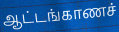
ஆட்டங்காணச்